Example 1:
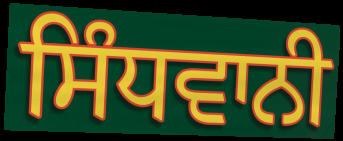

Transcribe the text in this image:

ਸਿੰਧਵਾਨੀ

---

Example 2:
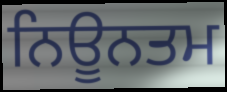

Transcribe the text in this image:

ਨਿਊਨਤਮ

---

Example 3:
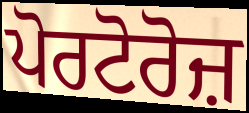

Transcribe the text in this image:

ਪੋਰਟੋਰੋਜ਼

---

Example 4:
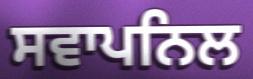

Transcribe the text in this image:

ਸਵਾਪਨਿਲ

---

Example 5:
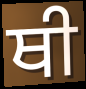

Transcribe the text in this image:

ਥੀ